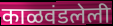
काळवंडलेली